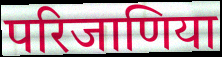
परिजाणिया